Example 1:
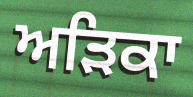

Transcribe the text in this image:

ਅੜਿਕਾ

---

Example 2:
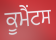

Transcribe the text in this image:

ਕੂਮੈਂਟਸ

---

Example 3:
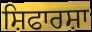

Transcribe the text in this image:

ਸ਼ਿਫਾਰਸ਼ਾ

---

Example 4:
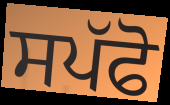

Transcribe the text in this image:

ਸਪੱਫੋ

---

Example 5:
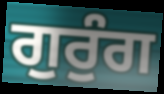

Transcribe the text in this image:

ਗੁਰੁੰਗ